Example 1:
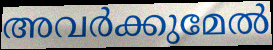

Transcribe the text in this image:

അവർക്കുമേൽ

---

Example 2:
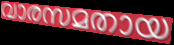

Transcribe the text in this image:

വാരസമതായ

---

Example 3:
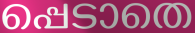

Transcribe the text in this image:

പ്പെടാതെ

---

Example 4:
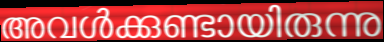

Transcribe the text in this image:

അവൾക്കുണ്ടായിരുന്നു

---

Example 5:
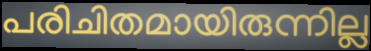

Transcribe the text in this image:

പരിചിതമായിരുന്നില്ല